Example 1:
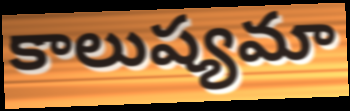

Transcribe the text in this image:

కాలుష్యమా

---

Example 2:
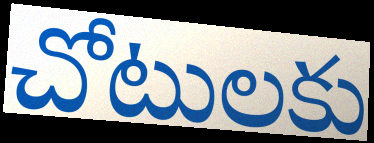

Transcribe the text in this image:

చోటులకు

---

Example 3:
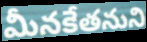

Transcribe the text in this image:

మీనకేతనుని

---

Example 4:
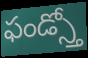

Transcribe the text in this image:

ఫండ్స్తో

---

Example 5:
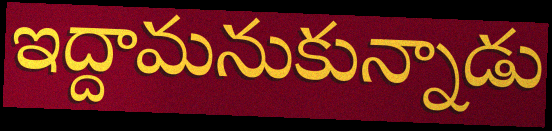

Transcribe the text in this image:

ఇద్దామనుకున్నాడు